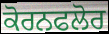
ਕੋਰਨਫਲੋਰ